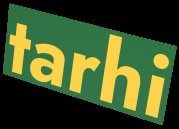
tarhi